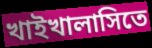
খাইখালাসিতে